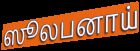
ஸூலபனாய்